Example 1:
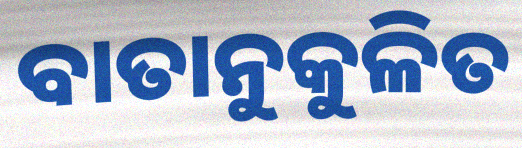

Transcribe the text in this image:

ବାତାନୁକୁଳିତ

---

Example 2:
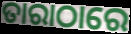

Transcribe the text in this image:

ତାରାଠାରେ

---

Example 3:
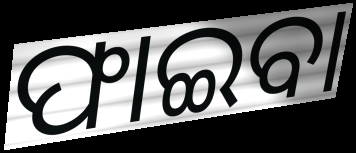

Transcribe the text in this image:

ଫାଇବା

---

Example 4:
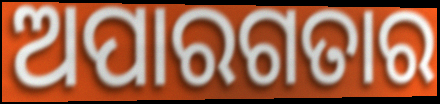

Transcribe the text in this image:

ଅପାରଗତାର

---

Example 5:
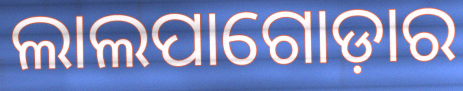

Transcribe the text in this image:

ଲାଲପାଗୋଡ଼ାର